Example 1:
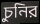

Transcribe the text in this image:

চুনির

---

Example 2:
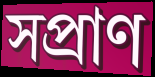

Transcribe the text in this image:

সপ্রাণ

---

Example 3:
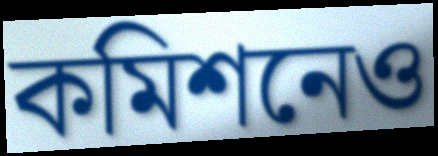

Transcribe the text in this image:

কমিশনেও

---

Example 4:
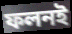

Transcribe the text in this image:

ফলনই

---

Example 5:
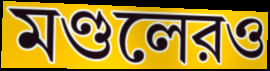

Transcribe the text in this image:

মণ্ডলেরও